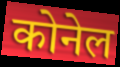
कोनेल